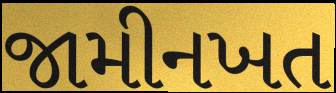
જામીનખત